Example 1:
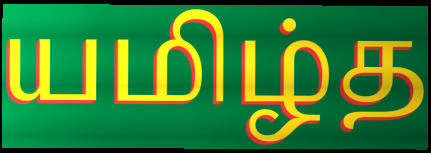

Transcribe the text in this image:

யமிழ்த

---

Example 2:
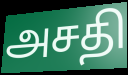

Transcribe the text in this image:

அசதி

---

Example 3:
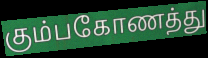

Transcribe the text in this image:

கும்பகோணத்து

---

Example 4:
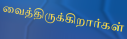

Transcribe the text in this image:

வைத்திருக்கிறார்கள்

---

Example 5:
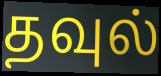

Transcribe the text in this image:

தவுல்